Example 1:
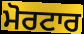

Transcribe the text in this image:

ਮੋਰਟਾਰ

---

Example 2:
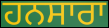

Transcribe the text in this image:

ਹਨਸਾਰਾ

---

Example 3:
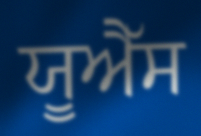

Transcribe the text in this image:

ਯੂਐੱਸ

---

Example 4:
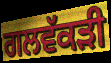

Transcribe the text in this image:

ਗਲਵੱਕਡ਼ੀ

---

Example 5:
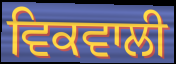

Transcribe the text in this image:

ਵਿਕਵਾਲੀ